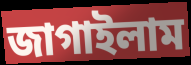
জাগাইলাম